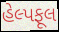
હેલ્પફૂલ